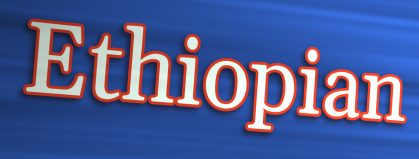
Ethiopian